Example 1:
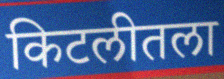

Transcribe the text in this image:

किटलीतला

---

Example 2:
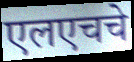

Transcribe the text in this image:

एलएचचे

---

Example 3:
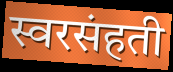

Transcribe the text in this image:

स्वरसंहती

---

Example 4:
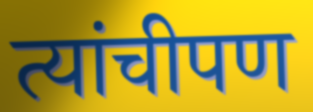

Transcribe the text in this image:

त्यांचीपण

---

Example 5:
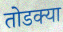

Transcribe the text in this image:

तोडक्या